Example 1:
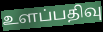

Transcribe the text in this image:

உளப்பதிவு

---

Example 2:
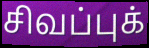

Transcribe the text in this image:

சிவப்புக்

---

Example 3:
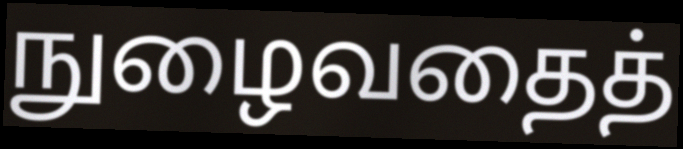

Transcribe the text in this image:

நுழைவதைத்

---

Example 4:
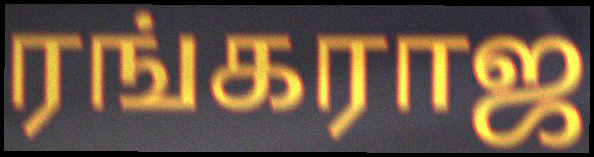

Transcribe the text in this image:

ரங்கராஜ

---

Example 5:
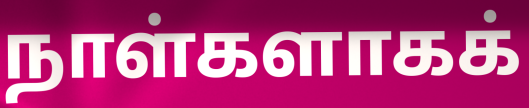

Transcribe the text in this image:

நாள்களாகக்